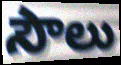
సౌలు